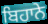
ਬਿਹਾਨੇ